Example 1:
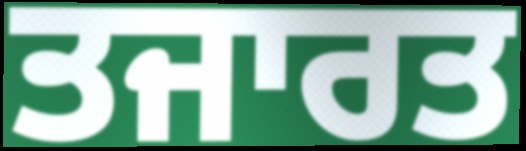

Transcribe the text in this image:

ਤਜਾਰਤ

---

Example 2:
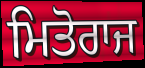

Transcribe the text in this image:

ਮਿਤੋਰਾਜ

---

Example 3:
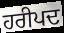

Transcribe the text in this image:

ਹਰੀਪਦ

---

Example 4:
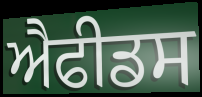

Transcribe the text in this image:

ਐਫੀਡਸ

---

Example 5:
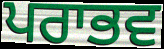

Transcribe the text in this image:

ਪਰਾਭਵ